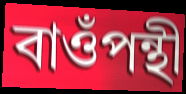
বাওঁপন্থী